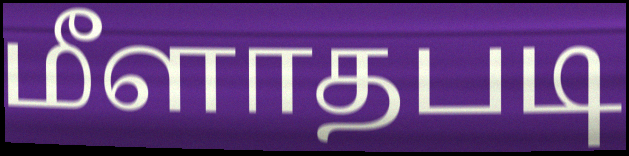
மீளாதபடி